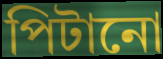
পিটানো